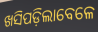
ଖସିପଡ଼ିଲାବେଳେ